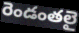
రెండంతలై